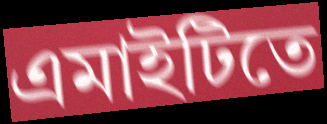
এমাইটিতে